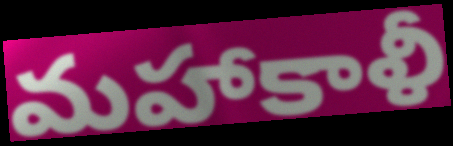
మహాకాళీ